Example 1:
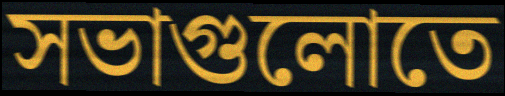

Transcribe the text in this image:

সভাগুলোতে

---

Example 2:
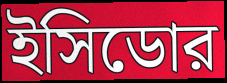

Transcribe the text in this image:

ইসিডোর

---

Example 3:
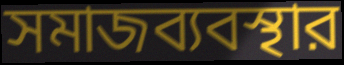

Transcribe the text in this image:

সমাজব্যবস্থার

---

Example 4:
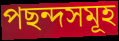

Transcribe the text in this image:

পছন্দসমূহ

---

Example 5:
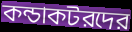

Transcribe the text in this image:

কন্ডাকটরদের